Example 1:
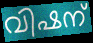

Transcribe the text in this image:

വിഷന്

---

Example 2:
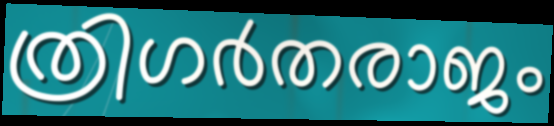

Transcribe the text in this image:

ത്രിഗർതരാജം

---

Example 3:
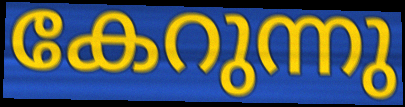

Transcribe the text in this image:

കേറുന്നു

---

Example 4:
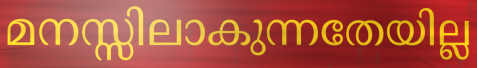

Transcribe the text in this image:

മനസ്സിലാകുന്നതേയില്ല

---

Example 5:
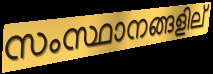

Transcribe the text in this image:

സംസ്ഥാനങ്ങളില്